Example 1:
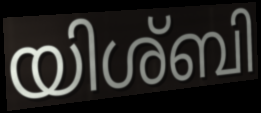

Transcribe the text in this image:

യിശ്ബി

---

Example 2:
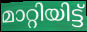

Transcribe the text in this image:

മാറ്റിയിട്ട്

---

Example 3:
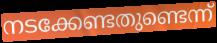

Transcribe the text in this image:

നടക്കേണ്ടതുണ്ടെന്ന്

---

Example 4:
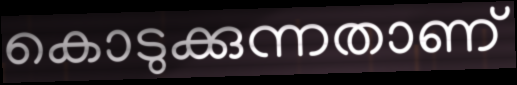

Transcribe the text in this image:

കൊടുക്കുന്നതാണ്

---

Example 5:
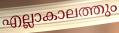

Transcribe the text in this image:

എല്ലാകാലത്തും